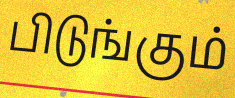
பிடுங்கும்